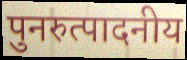
पुनरुत्पादनीय